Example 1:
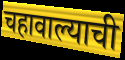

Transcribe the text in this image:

चहावाल्याची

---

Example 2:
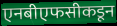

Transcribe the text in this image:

एनबीएफसीकडून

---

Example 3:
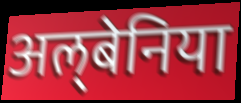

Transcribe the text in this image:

अल्बेनिया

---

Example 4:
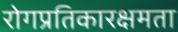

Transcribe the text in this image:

रोगप्रतिकारक्षमता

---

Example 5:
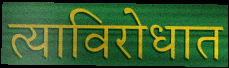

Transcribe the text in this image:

त्याविरोधात